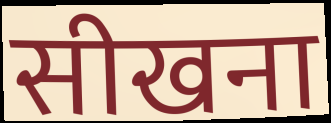
सीखना